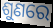
ଶୁଣରେ